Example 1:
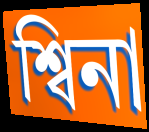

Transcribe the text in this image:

শ্বিনা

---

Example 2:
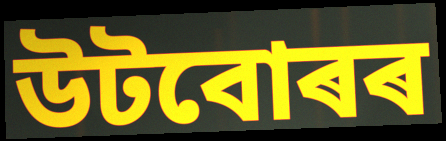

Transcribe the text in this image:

উটবোৰৰ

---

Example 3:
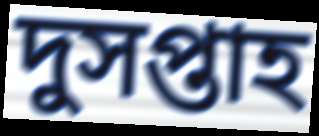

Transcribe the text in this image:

দুসপ্তাহ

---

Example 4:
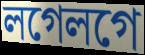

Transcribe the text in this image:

লগেলগে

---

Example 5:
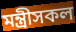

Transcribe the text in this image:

মন্ত্ৰীসকল